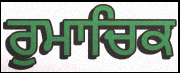
ਰੁਮਾਚਿਕ